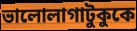
ভালোলাগাটুকুকে